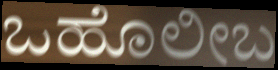
ಒಹೊಲೀಬ